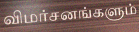
விமர்சனங்களும்